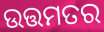
ଉତ୍ତମତର